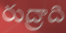
రుద్రాది